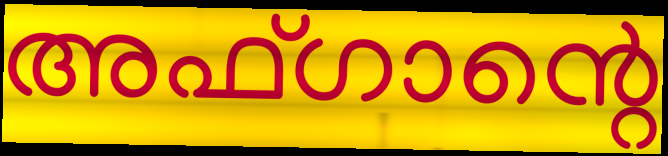
അഫ്ഗാന്റെ